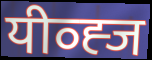
यीव्ह्ज